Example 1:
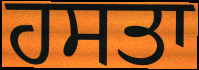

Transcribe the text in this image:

ਹਸਤਾ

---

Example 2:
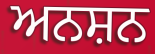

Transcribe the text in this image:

ਅਨਸ਼ਨ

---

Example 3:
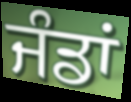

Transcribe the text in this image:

ਜੰਡਾਂ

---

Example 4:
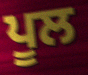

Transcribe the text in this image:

ਪੂਲ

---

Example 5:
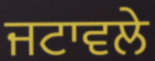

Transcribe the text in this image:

ਜਟਾਵਲੇ